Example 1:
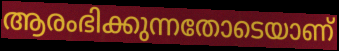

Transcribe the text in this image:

ആരംഭിക്കുന്നതോടെയാണ്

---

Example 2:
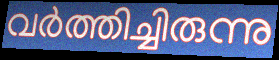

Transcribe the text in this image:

വർത്തിച്ചിരുന്നു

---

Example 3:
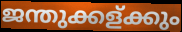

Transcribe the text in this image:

ജന്തുക്കള്ക്കും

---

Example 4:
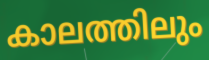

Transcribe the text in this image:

കാലത്തിലും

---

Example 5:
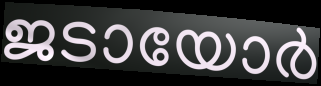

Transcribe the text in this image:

ജടായോർ